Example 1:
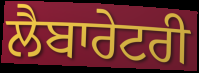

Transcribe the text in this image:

ਲੈਬਾਰੇਟਰੀ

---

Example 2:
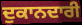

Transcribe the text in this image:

ਦੁਕਾਨਦਾਰੀ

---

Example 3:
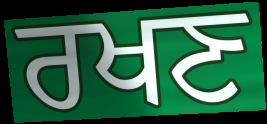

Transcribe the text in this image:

ਰਖਣ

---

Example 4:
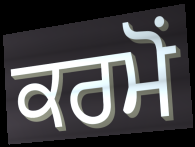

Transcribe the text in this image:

ਕਰਮੋਂ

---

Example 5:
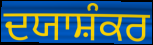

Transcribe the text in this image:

ਦਯਾਸ਼ੰਕਰ